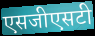
एसजीएसटी